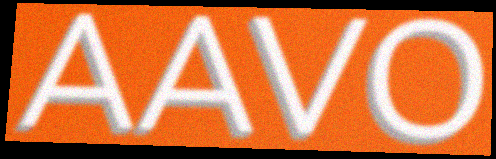
AAVO